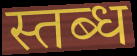
स्तब्ध